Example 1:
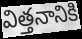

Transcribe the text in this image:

విత్తనానికి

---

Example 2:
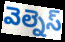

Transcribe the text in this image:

వెల్నెస్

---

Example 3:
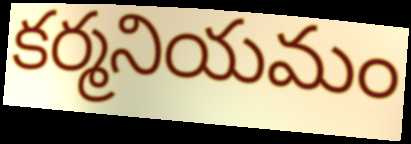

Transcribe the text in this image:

కర్మనియమం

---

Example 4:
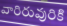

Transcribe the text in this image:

వారిరువురికి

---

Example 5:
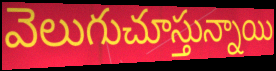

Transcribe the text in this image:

వెలుగుచూస్తున్నాయి